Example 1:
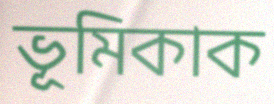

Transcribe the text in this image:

ভূমিকাক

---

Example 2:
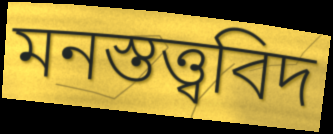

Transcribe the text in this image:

মনস্তত্ত্ববিদ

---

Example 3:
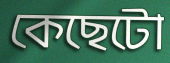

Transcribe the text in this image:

কেছেটো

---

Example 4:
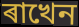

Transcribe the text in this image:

ৰাখেন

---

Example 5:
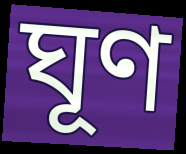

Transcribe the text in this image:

ঘূণ